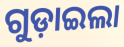
ଗୁଡ଼ାଇଲା